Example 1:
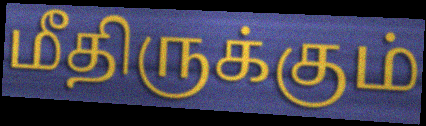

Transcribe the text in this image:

மீதிருக்கும்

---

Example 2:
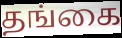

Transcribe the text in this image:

தங்கை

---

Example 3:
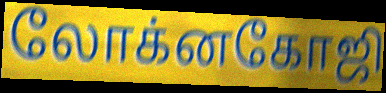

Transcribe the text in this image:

லோக்னகோஜி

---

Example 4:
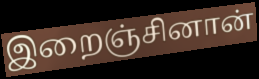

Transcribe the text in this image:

இறைஞ்சினான்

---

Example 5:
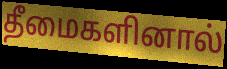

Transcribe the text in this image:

தீமைகளினால்